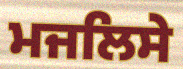
ਮਜਲਿਸੇ